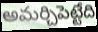
అమర్చిపెట్టేది